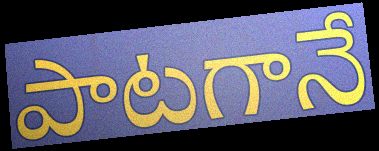
పాటగానే